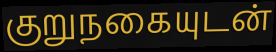
குறுநகையுடன்